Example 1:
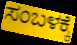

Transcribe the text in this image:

ಸಂಬಳಕ್ಕೆ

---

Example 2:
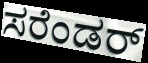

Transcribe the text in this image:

ಸರೆಂಡರ್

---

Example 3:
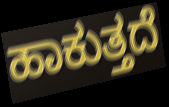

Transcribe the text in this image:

ಹಾಕುತ್ತದೆ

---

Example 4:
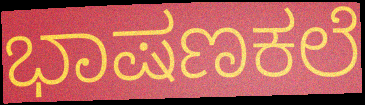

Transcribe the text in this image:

ಭಾಷಣಕಲೆ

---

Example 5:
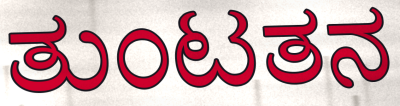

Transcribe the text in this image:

ತುಂಟತನ